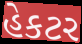
હેકટર